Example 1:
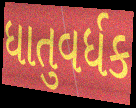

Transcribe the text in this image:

ધાતુવર્ધક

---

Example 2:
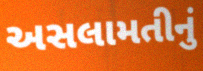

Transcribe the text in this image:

અસલામતીનું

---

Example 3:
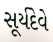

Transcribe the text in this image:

સૂર્યદેવે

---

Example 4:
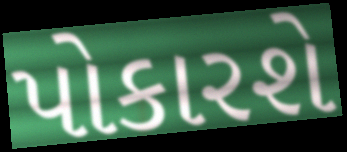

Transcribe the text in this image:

પોકારશે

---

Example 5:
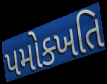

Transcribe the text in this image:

પમોક્ખતિ